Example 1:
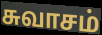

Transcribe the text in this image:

சுவாசம்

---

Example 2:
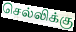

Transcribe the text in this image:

செல்லிக்கு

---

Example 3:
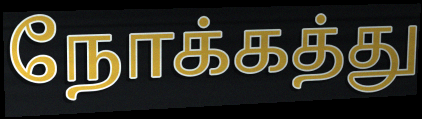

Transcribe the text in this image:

நோக்கத்து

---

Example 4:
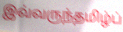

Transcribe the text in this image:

இவ்வருந்தமிழ்ப்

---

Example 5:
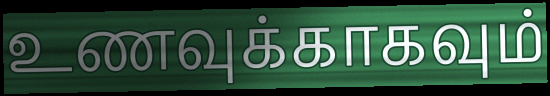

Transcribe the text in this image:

உணவுக்காகவும்